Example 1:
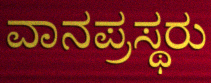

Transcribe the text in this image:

ವಾನಪ್ರಸ್ಥರು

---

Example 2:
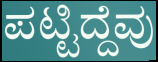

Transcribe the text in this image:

ಪಟ್ಟಿದ್ದೆವು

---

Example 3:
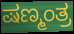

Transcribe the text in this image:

ಷಣ್ಮಂತ್ರ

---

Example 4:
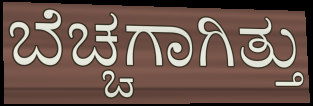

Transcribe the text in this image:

ಬೆಚ್ಚಗಾಗಿತ್ತು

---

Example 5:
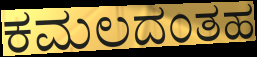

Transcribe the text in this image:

ಕಮಲದಂತಹ